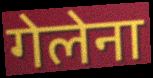
गेलेना